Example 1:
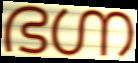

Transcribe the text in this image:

ഭഗ്ന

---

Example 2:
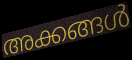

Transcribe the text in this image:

അക്കങ്ങൾ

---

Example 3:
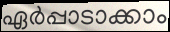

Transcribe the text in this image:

ഏർപ്പാടാക്കാം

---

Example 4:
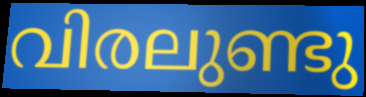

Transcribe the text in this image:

വിരലുണ്ടു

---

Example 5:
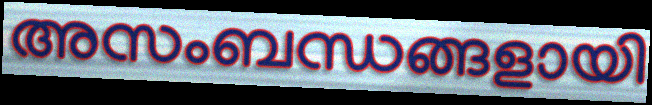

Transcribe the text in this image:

അസംബന്ധങ്ങളായി